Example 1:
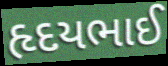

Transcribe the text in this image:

હૃદયભાઈ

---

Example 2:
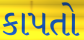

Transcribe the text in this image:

કાપતો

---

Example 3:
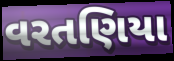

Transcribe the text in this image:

વરતણિયા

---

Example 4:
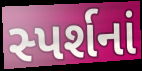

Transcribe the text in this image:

સ્પર્શનાં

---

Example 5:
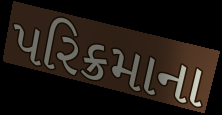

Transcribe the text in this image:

પરિક્રમાના